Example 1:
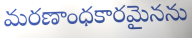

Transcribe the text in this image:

మరణాంధకారమైనను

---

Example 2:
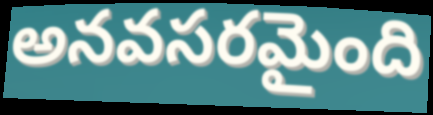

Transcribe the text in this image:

అనవసరమైంది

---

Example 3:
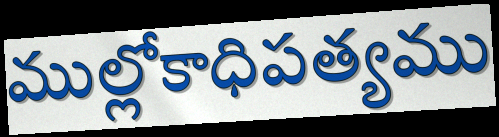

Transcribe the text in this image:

ముల్లోకాధిపత్యము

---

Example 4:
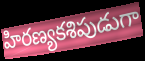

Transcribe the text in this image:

హిరణ్యకశిపుడుగా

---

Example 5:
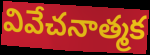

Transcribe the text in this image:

వివేచనాత్మక